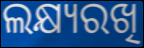
ଲକ୍ଷ୍ୟରଖି